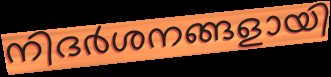
നിദർശനങ്ങളായി